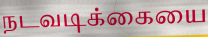
நடவடிக்கையை